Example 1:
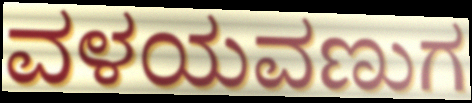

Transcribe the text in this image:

ವಳಯವಣುಗ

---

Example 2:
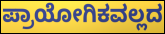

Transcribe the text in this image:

ಪ್ರಾಯೋಗಿಕವಲ್ಲದ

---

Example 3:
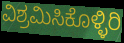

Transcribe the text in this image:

ವಿಶ್ರಮಿಸಿಕೊಳ್ಳಿರಿ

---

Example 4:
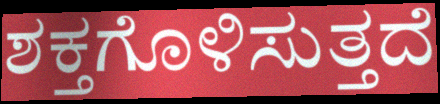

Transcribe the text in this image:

ಶಕ್ತಗೊಳಿಸುತ್ತದೆ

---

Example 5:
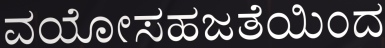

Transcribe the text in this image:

ವಯೋಸಹಜತೆಯಿಂದ